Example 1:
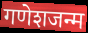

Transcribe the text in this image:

गणेशजन्म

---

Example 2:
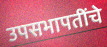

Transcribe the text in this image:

उपसभापतींचे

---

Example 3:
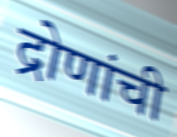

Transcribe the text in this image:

द्रोणांची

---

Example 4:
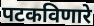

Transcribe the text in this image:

पटकविणारे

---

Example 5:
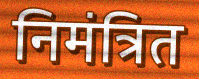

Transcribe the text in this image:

निमंत्रित